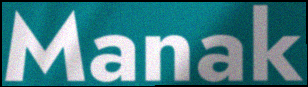
Manak